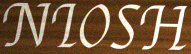
NIOSH